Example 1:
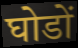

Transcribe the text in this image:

घोडों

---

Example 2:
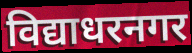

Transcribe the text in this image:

विद्याधरनगर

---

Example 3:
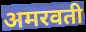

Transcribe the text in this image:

अमरवती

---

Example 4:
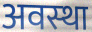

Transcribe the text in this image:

अवस्‍था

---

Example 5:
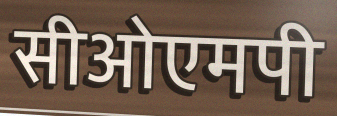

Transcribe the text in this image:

सीओएमपी